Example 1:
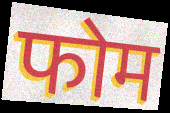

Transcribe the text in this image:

फोम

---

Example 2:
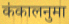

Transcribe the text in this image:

कंकालनुमा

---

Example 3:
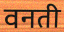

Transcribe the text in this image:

वनती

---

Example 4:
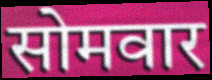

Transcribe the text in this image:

सोमवार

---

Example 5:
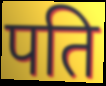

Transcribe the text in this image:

पति